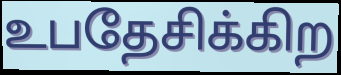
உபதேசிக்கிற